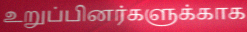
உறுப்பினர்களுக்காக